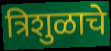
त्रिशुळाचे